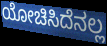
ಯೋಚಿಸಿದೆನಲ್ಲ